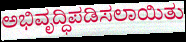
ಅಭಿವೃದ್ಧಿಪಡಿಸಲಾಯಿತು